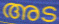
അട